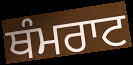
ਥੰਮਰਾਟ